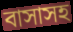
বাসাসহ